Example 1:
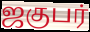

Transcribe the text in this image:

ஜகுபர்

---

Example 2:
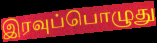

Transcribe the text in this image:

இரவுப்பொழுது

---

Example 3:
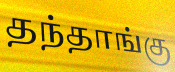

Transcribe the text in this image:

தந்தாங்கு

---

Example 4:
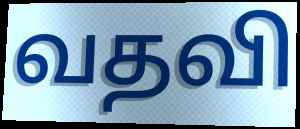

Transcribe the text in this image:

வதவி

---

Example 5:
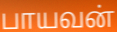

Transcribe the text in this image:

பாயவன்